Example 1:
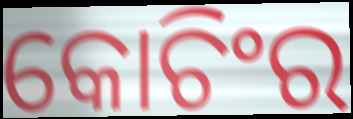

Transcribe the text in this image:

କୋଚିଂର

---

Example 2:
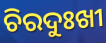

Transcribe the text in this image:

ଚିରଦୁଃଖୀ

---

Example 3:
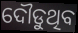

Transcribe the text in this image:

ଦୌଡୁଥିବ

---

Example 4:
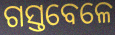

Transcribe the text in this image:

ଗସ୍ତବେଳେ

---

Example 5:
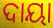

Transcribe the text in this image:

ଦାୟା